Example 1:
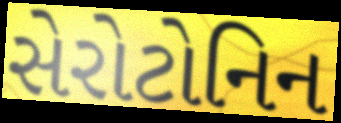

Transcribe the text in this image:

સેરોટોનિન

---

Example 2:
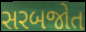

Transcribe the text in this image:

સરબજોત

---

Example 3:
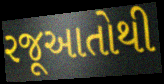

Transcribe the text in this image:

રજૂઆતોથી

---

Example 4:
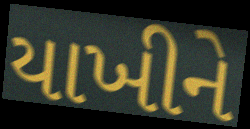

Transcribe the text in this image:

યાખીને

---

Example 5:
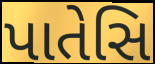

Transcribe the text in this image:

પાતેસિ